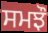
ਸਮਝੌ